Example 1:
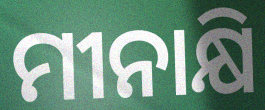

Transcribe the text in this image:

ମୀନାକ୍ଷି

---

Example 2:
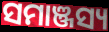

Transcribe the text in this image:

ସମାଞ୍ଜସ୍ୟ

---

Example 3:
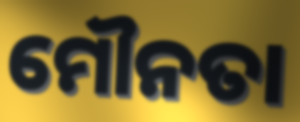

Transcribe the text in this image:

ମୌନତା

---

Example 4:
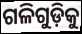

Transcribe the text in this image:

ଗଳିଗୁଡ଼ିକୁ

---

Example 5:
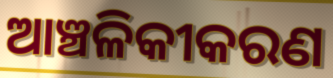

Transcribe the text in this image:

ଆଞ୍ଚଳିକୀକରଣ